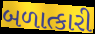
બળાત્કારી